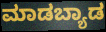
ಮಾಡಬ್ಯಾಡ